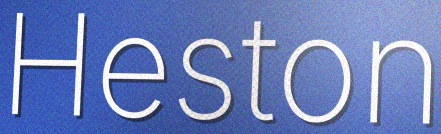
Heston